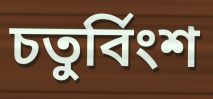
চতুৰ্বিংশ